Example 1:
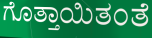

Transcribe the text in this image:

ಗೊತ್ತಾಯಿತಂತೆ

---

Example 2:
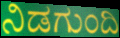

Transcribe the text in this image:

ನಿಡಗುಂದಿ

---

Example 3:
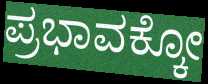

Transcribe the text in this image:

ಪ್ರಭಾವಕ್ಕೋ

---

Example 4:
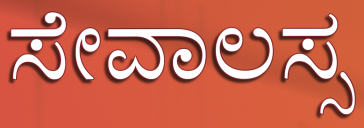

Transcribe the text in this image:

ಸೇವಾಲಸ್ಸ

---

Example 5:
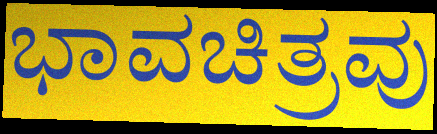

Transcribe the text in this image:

ಭಾವಚಿತ್ರವು